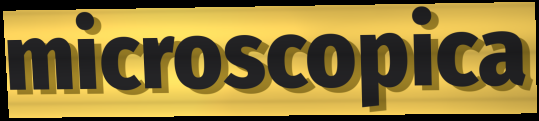
microscopica